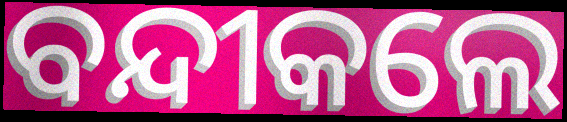
ବନ୍ଦୀକଲେ